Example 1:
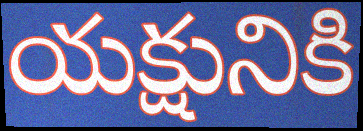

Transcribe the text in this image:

యక్షునికి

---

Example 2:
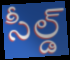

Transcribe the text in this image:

సీల్డ్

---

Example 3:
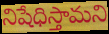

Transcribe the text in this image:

నిషేధిస్తామని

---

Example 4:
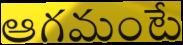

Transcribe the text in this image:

ఆగమంటే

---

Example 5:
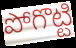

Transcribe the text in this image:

పోగొట్టి